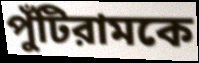
পুঁটিরামকে